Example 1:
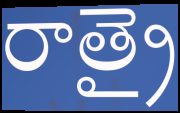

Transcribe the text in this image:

రాత్రై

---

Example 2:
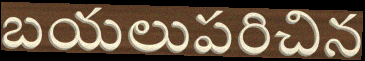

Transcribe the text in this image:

బయలుపరిచిన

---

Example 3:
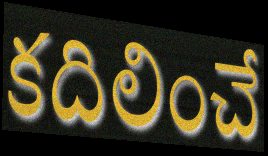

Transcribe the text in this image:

కదిలించే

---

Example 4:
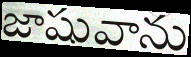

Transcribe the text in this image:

జాషువాను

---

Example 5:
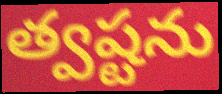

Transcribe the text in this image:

త్వష్టను